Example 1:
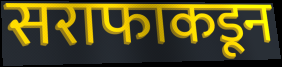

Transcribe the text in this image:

सराफाकडून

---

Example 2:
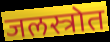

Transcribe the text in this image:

जलस्त्रोत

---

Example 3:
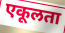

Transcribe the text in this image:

एकूलता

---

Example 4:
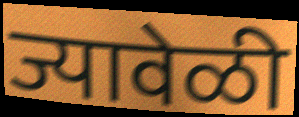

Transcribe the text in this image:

ज्यावेळी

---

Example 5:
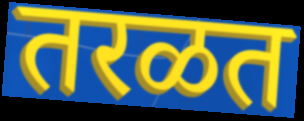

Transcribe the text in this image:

तरळत